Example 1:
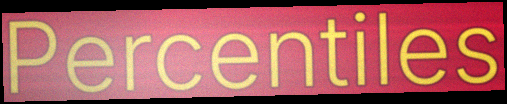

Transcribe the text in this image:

Percentiles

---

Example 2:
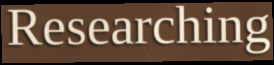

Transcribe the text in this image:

Researching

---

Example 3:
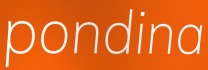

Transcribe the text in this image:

pondina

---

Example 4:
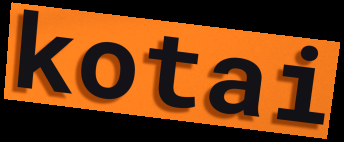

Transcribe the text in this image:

kotai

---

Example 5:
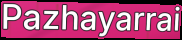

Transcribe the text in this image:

Pazhayarrai